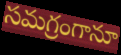
సమగ్రంగానూ